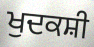
ਖੁਦਕਸ਼ੀ